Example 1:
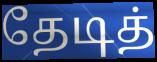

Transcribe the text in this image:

தேடித்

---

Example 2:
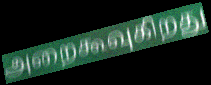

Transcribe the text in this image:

அறைகூவுகிறது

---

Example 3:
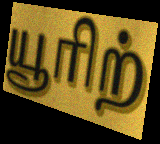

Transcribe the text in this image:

யூரிற்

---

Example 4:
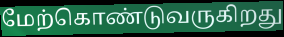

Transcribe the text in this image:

மேற்கொண்டுவருகிறது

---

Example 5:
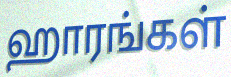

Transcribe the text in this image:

ஹாரங்கள்